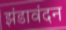
झंडावंदन